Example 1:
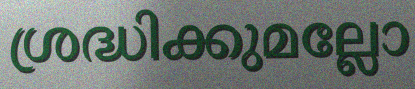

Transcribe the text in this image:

ശ്രദ്ധിക്കുമല്ലോ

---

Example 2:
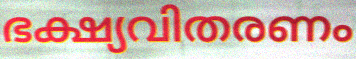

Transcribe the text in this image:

ഭക്ഷ്യവിതരണം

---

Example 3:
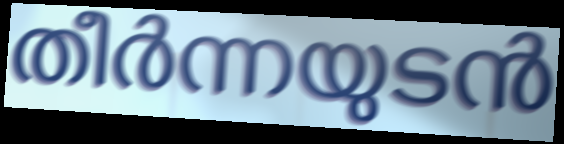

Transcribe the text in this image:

തീർന്നയുടൻ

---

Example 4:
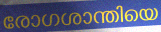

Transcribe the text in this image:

രോഗശാന്തിയെ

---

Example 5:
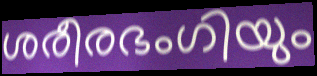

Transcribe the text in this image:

ശരീരഭംഗിയും